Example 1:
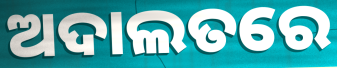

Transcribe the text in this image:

ଅଦାଲତରେ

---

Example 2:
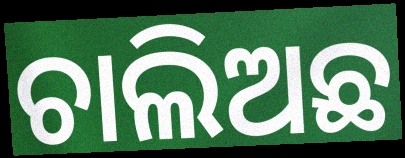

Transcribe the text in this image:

ଚାଲିଅଛ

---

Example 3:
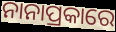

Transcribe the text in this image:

ନାନାପ୍ରକାରେ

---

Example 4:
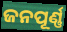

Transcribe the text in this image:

ଜନପୂର୍ଣ୍ଣ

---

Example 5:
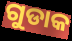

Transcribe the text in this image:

ଗୁଡାକ